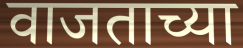
वाजताच्या